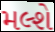
મલ્શે